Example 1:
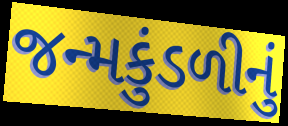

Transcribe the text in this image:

જન્મકુંડળીનું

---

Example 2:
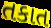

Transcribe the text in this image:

તકાત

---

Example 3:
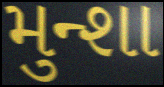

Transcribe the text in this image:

મુન્શા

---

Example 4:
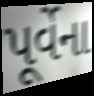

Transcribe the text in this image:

પૂર્વેના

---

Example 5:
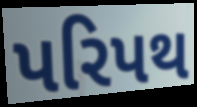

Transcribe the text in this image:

પરિપથ